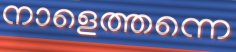
നാളെത്തന്നെ